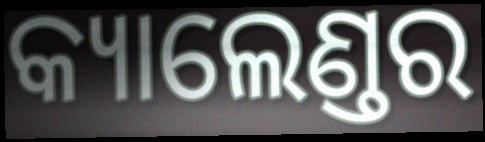
କ୍ୟାଲେଣ୍ଡର